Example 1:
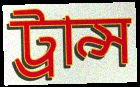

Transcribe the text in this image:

ট্ৰান্স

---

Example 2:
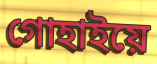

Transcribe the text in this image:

গোহাইয়ে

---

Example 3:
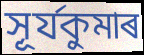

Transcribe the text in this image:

সূৰ্যকুমাৰ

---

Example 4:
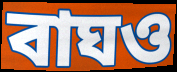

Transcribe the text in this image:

বাঘও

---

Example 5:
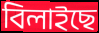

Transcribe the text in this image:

বিলাইছে